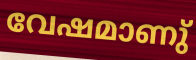
വേഷമാണു്